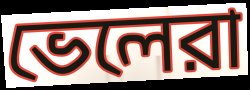
ভেলেরা